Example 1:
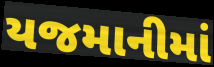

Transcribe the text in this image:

યજમાનીમાં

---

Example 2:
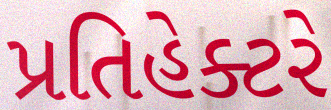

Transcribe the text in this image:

પ્રતિહેક્ટરે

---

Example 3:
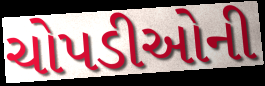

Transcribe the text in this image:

ચોપડીઓની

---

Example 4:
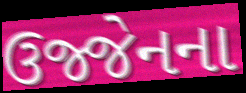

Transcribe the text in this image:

ઉજ્જેનના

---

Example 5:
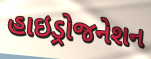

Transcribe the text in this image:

હાઇડ્રોજનેશન